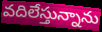
వదిలేస్తున్నాను